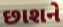
છાશને